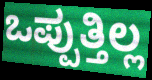
ಒಪ್ಪುತ್ತಿಲ್ಲ